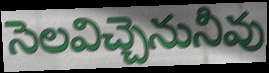
సెలవిచ్చెనునీవు